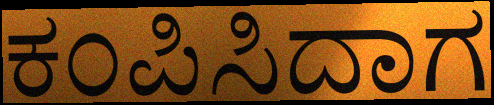
ಕಂಪಿಸಿದಾಗ